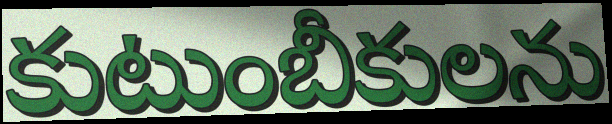
కుటుంబీకులను